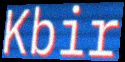
Kbir